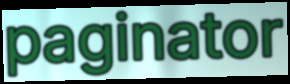
paginator